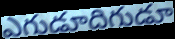
ఎగుడూదిగుడూ